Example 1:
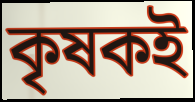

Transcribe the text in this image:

কৃষকই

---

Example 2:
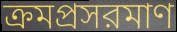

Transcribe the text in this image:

ক্রমপ্রসরমাণ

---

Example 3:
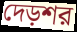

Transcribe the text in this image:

দেড়শর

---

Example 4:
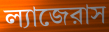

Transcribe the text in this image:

ল্যাজেরাস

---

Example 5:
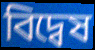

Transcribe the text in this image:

বিদ্বেষ